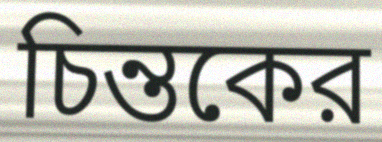
চিন্তকের